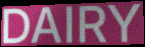
DAIRY